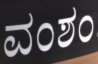
ವಂಶಂ